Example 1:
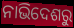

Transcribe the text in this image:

ନାଭିଦେଶରୁ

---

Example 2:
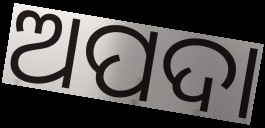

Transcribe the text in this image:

ଅପଦା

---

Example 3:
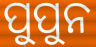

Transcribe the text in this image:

ପୁପୁନ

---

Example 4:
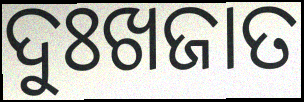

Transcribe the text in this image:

ଦୁଃଖଜାତ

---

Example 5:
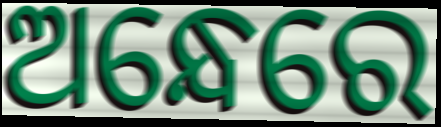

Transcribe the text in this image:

ଅନ୍ଧେରେ